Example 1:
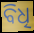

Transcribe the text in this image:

ବିଧି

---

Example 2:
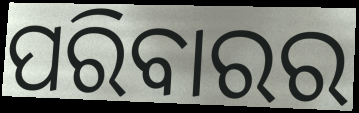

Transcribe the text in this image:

ପରିବାରର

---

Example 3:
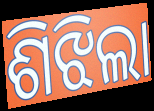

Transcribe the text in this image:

ଶିଝିଲା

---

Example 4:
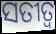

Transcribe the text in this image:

ସତୀତ୍ବ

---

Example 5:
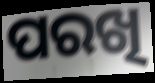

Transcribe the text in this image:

ପରଖି